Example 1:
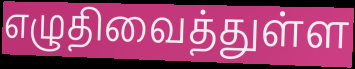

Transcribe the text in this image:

எழுதிவைத்துள்ள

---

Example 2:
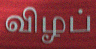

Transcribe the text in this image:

விழப்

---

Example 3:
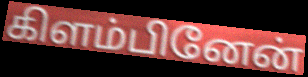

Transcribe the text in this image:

கிளம்பினேன்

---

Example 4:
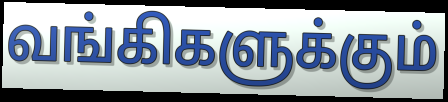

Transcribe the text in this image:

வங்கிகளுக்கும்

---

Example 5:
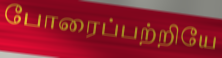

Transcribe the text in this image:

போரைப்பற்றியே